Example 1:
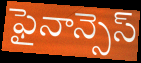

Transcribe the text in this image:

ఫైనాన్సెస్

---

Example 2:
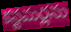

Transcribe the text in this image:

కస్టమర్లను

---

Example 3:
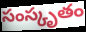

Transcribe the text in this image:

సంస్కృతం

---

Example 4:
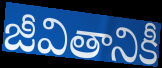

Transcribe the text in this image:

జీవితానికీ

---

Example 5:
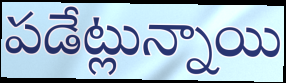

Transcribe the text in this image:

పడేట్లున్నాయి